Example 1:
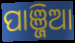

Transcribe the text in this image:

ପାଞ୍ଜିଆ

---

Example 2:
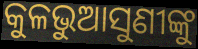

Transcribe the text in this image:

କୁଳଭୁଆସୁଣୀଙ୍କୁ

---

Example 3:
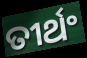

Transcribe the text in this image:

ତୀର୍ଥଂ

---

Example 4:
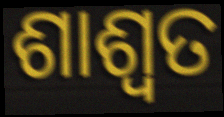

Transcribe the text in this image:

ଶାଶ୍ୱତ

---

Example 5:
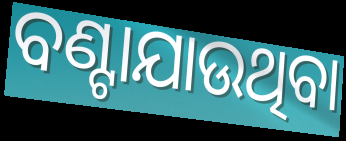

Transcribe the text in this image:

ବଣ୍ଟାଯାଉଥିବା